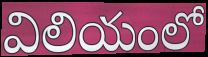
విలియంలో